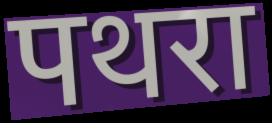
पथरा